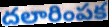
దలారింపక